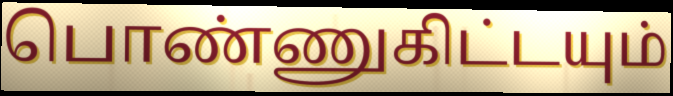
பொண்ணுகிட்டயும்